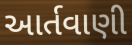
આર્તવાણી